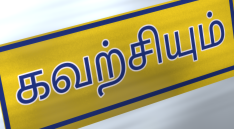
கவற்சியும்